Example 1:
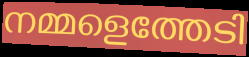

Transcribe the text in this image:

നമ്മളെത്തേടി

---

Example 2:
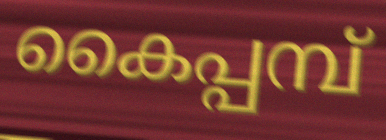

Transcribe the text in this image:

കൈപ്പമ്പ്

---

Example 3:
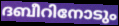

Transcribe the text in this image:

ദബീറിനോടും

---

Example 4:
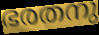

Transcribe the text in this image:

ഭരതനു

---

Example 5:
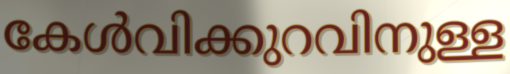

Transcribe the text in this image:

കേൾവിക്കുറവിനുള്ള